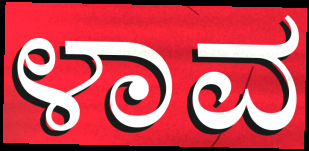
ಳಾವ